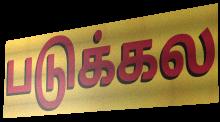
படுக்கல